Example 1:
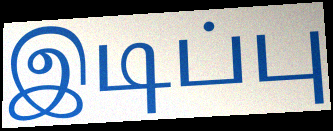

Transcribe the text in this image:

இடிப்பு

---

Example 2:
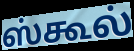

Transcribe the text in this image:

ஸ்கூல்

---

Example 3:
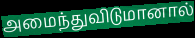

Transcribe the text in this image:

அமைந்துவிடுமானால்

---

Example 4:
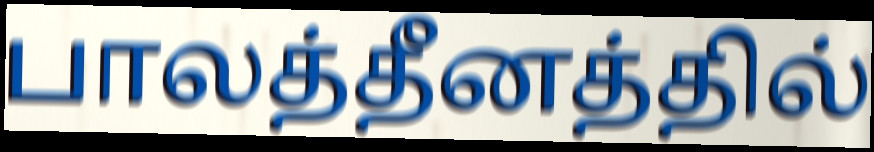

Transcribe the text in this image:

பாலத்தீனத்தில்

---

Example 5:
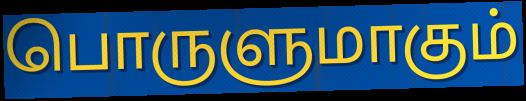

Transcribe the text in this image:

பொருளுமாகும்